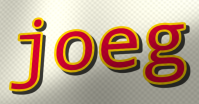
joeg